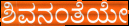
ಶಿವನಂತೆಯೇ